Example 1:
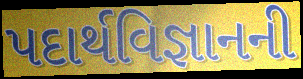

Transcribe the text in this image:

પદાર્થવિજ્ઞાનની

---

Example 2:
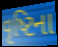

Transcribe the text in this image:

વૃષ્ટિના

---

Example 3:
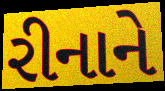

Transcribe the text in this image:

રીનાને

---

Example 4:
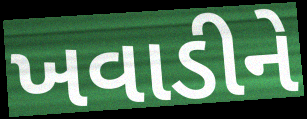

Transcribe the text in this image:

ખવાડીને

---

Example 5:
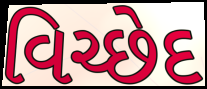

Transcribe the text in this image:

વિચ્છેદ